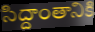
సిద్దాంతానికి